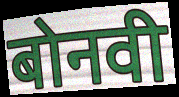
बोनवी